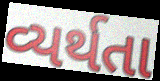
વ્યર્થતા